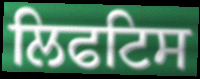
ਲਿਫਟਿਸ